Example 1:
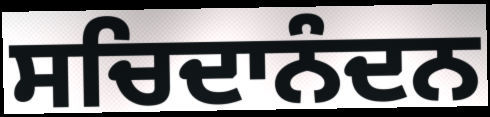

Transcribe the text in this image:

ਸਚਿਦਾਨੰਦਨ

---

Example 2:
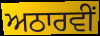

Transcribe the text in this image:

ਅਠਾਰਵੀਂ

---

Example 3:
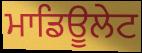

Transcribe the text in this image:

ਮਾਡਿਊਲੇਟ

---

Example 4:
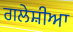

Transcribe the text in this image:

ਗਲੇਸ਼ੀਆ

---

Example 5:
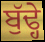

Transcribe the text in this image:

ਬੁੱਢ੍ਹੇ